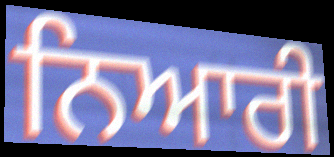
ਨਿਆਰੀ